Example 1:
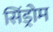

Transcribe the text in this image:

सिंड्रोम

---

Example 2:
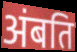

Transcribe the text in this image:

अंबति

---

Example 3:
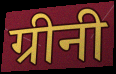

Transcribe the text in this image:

ग्रीनी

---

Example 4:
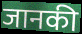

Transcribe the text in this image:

जानकी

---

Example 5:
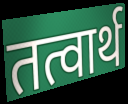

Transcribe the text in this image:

तत्वार्थ